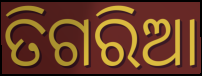
ତିଗରିଆ